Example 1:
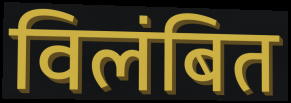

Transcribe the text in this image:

विलंबित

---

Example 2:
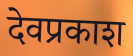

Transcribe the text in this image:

देवप्रकाश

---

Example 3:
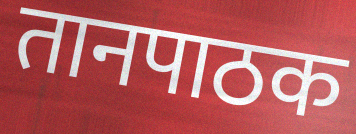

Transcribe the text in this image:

तानपाठक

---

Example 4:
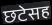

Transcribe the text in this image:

छटेसह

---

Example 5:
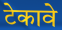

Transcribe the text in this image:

टेकावे